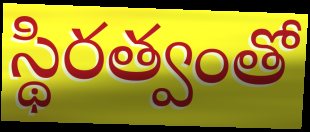
స్థిరత్వంతో